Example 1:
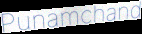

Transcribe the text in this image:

Punamchand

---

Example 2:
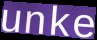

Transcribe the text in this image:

unke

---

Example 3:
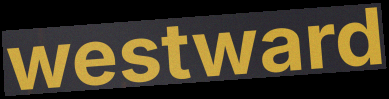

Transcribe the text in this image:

westward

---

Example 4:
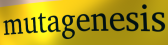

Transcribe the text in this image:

mutagenesis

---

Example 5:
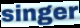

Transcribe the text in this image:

singer